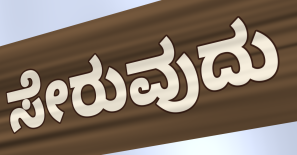
ಸೇರುವುದು